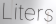
Liters